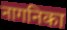
नागनिका